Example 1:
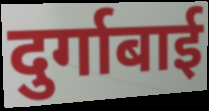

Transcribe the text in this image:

दुर्गाबाई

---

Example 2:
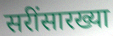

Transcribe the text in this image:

सरींसारख्या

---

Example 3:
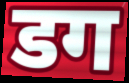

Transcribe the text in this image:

डग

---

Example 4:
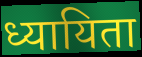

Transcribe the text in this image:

ध्यायिता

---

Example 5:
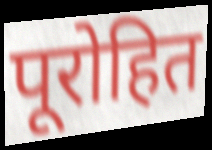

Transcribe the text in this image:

पूरोहित